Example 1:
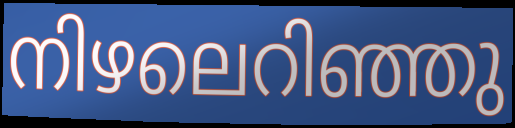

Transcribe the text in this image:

നിഴലെറിഞ്ഞു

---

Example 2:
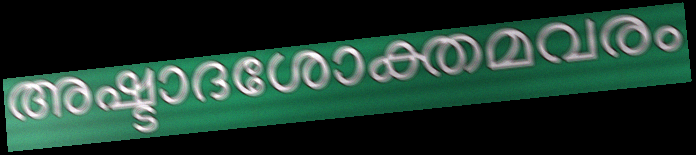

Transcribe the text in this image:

അഷ്ടാദശോക്തമവരം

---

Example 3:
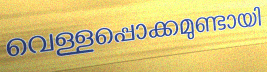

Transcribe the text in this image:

വെള്ളപ്പൊക്കമുണ്ടായി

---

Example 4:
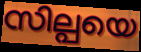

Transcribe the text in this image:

സില്പയെ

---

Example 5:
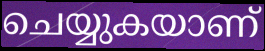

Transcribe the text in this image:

ചെയ്യുകയാണ്